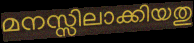
മനസ്സിലാക്കിയതു